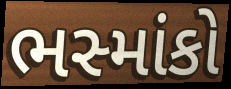
ભસ્માંકો